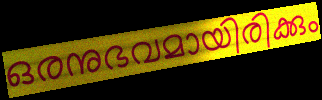
ഒരനുഭവമായിരിക്കും